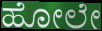
ಹೋಲೇ